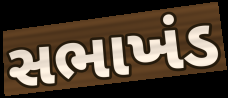
સભાખંડ